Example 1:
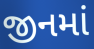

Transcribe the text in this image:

જીનમાં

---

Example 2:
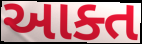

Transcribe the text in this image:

આક્ત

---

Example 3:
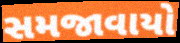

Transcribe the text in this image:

સમજાવાયો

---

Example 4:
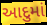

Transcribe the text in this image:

આદુમાં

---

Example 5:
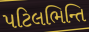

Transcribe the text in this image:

પટિલભિન્તિ